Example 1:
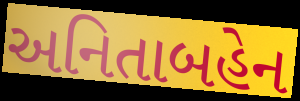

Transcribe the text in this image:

અનિતાબહેન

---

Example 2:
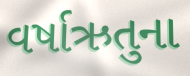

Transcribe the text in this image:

વર્ષાઋતુના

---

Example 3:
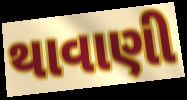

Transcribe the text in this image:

થાવાણી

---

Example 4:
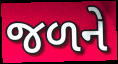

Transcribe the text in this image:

જળને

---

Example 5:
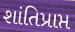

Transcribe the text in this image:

શાંતિપ્રાપ્ત